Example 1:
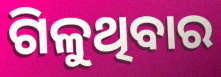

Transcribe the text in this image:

ଗିଳୁଥିବାର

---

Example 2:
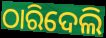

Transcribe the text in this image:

ଠାରିଦେଲି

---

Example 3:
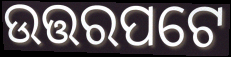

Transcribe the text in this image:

ଉତ୍ତରପଟେ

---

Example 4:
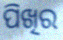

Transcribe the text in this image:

ପିଖିର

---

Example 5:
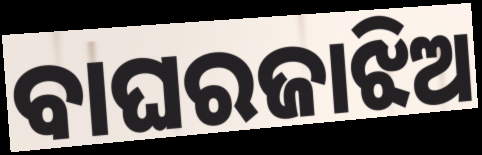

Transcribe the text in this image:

ବାଘରଜାଝିଅ